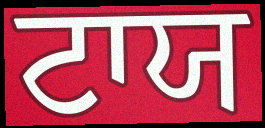
ਟਾਯ